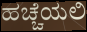
ಹಚ್ಚೆಯಲಿ